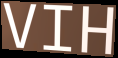
VIH